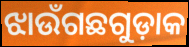
ଝାଉଁଗଛଗୁଡ଼ାକ